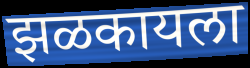
झळकायला